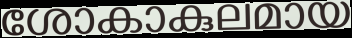
ശോകാകുലമായ